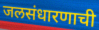
जलसंधारणाची